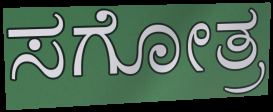
ಸಗೋತ್ರ